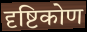
दृष्टिकोण